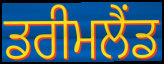
ਡਰੀਮਲੈਂਡ